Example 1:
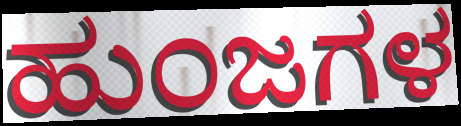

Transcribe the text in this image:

ಹುಂಜಗಳ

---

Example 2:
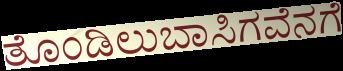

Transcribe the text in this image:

ತೊಂಡಿಲುಬಾಸಿಗವೆನಗೆ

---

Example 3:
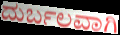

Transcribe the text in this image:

ದುರ್ಬಲವಾಗಿ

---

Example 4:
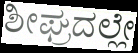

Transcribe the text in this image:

ಶೀಘ್ರದಲ್ಲೇ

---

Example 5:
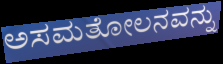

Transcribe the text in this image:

ಅಸಮತೋಲನವನ್ನು